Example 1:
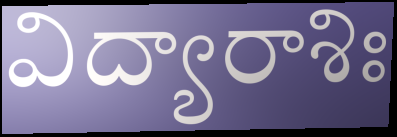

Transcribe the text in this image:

విద్యారాశిః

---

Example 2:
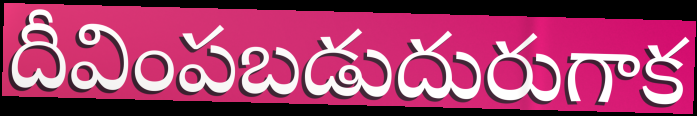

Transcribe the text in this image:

దీవింపబడుదురుగాక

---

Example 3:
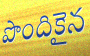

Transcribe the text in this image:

పొందికైన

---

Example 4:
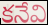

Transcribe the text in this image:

కనేవి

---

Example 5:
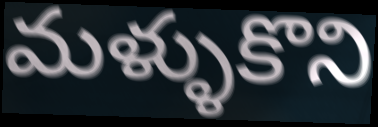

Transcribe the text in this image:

మళ్ళుకొని